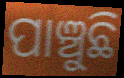
ପାଞ୍ଚୁଛି